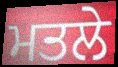
ਮਤਲੇ